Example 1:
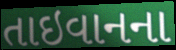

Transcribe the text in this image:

તાઇવાનના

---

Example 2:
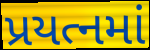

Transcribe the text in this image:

પ્રયત્નમાં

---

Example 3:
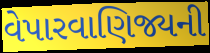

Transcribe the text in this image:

વેપારવાણિજ્યની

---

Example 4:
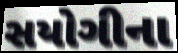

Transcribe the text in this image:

સયોગીના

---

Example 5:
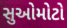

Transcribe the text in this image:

સુઓમોટો